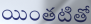
యింతటితో